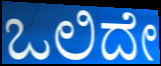
ಒಲಿದೇ